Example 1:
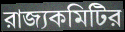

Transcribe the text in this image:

রাজ্যকমিটির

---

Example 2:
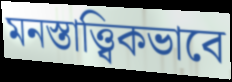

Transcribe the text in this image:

মনস্তাত্ত্বিকভাবে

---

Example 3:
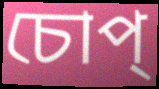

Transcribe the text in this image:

চোপ্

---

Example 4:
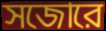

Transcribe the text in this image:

সজোরে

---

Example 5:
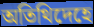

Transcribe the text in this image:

অতিথিদেহে